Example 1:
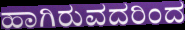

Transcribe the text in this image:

ಹಾಗಿರುವದರಿಂದ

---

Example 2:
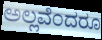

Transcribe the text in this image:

ಅಲ್ಲವೆಂದರೂ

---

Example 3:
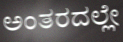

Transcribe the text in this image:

ಅಂತರದಲ್ಲೇ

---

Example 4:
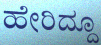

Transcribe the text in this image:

ಹೇರಿದ್ದೂ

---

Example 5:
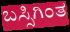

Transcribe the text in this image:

ಬಸ್ಸಿಗಿಂತ